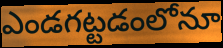
ఎండగట్టడంలోనూ